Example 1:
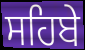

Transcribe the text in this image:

ਸਹਿਬੇ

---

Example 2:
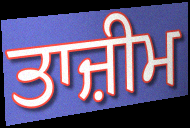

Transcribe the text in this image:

ਤਾਜ਼ੀਮ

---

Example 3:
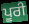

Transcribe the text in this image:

ਪੂਰੀ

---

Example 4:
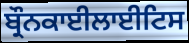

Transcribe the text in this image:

ਬ੍ਰੌਨਕਾਈਲਾਈਟਿਸ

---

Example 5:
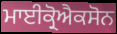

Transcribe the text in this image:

ਮਾਈਕ੍ਰੋਐਕਸੋਨ